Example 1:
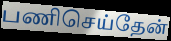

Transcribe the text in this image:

பணிசெய்தேன்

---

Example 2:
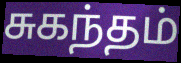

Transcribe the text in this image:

சுகந்தம்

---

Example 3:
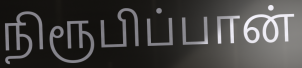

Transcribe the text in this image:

நிரூபிப்பான்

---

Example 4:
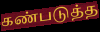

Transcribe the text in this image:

கண்படுத்த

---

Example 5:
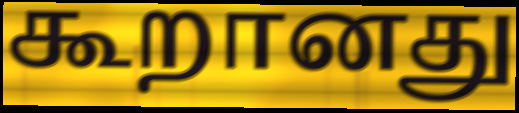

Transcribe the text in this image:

கூறானது